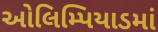
ઓલિમ્પિયાડમાં